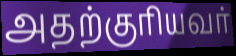
அதற்குரியவர்